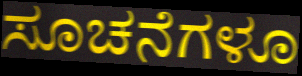
ಸೂಚನೆಗಳೂ